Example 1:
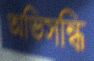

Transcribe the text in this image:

অভিসন্ধি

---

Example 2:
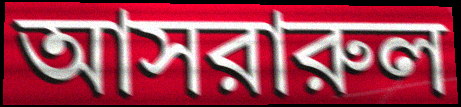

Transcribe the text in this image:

আসরারুল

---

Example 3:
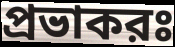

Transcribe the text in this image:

প্রভাকরঃ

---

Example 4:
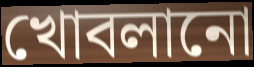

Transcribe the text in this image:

খোবলানো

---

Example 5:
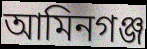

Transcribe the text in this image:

আমিনগঞ্জ